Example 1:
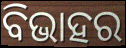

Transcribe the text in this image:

ବିଭାହର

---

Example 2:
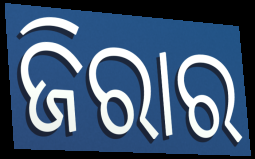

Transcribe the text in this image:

ଜିରାର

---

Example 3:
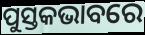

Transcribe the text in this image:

ପୁସ୍ତକଭାବରେ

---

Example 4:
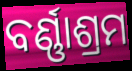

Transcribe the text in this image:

ବର୍ଣ୍ଣାଶ୍ରମ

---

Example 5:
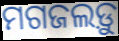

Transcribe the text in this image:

ମଗଜଲଡ଼ୁ